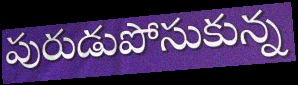
పురుడుపోసుకున్న